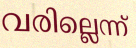
വരില്ലെന്ന്